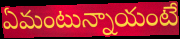
ఏమంటున్నాయంటే